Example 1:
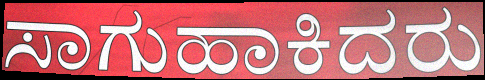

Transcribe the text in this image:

ಸಾಗುಹಾಕಿದರು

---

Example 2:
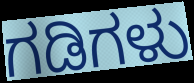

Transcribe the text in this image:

ಗಡಿಗಳು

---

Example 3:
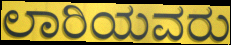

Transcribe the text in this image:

ಲಾರಿಯವರು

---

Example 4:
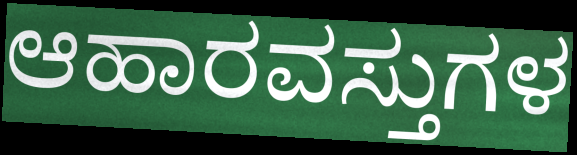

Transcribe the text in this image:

ಆಹಾರವಸ್ತುಗಳ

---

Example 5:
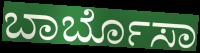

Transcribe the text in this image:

ಬಾರ್ಬೊಸಾ